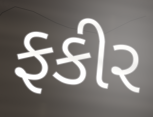
ફકીર